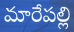
మారేపల్లి